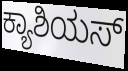
ಕ್ಯಾಶಿಯಸ್